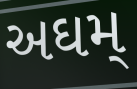
અઘમ્